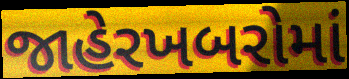
જાહેરખબરોમાં